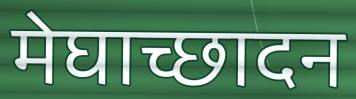
मेघाच्छादन